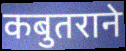
कबुतराने